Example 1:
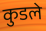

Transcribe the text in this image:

कुडले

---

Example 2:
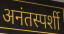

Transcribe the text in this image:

अनंतस्पर्शी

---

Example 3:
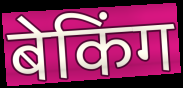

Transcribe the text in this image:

बेकिंग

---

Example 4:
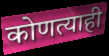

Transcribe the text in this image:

कोणत्याही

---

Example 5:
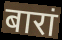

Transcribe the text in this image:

बारां